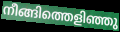
നീങ്ങിത്തെളിഞ്ഞു